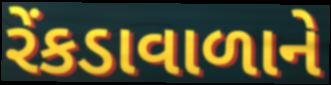
રેંકડાવાળાને